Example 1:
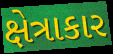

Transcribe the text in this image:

ક્ષેત્રાકાર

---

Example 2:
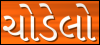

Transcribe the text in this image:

ચોડેલો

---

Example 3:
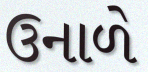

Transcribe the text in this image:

ઉનાળે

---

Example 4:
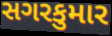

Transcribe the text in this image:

સગરકુમાર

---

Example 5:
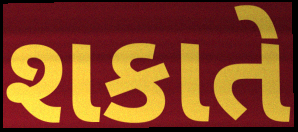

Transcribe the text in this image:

શકાતે